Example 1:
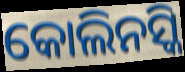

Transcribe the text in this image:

କୋଲିନସ୍କି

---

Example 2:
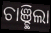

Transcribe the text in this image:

ଚାଞ୍ଛିଲା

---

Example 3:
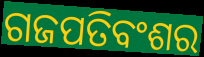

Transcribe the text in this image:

ଗଜପତିବଂଶର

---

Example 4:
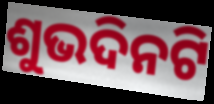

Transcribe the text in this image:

ଶୁଭଦିନଟି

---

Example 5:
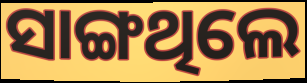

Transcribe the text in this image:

ସାଙ୍ଗଥିଲେ